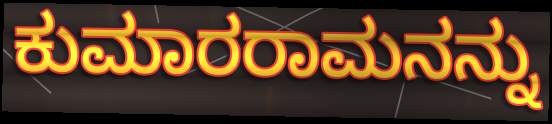
ಕುಮಾರರಾಮನನ್ನು